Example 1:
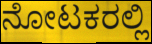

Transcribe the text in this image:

ನೋಟಕರಲ್ಲಿ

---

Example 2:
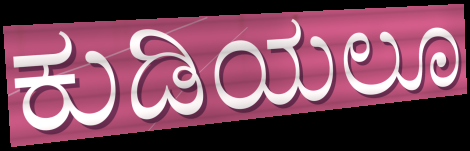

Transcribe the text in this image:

ಕುಡಿಯಲೂ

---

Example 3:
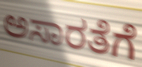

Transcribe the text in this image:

ಅಸಾರತೆಗೆ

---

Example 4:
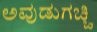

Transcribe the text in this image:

ಅವುಡುಗಚ್ಚಿ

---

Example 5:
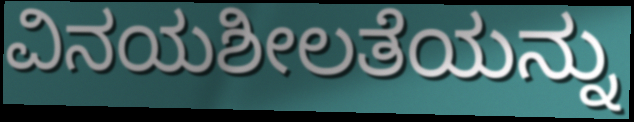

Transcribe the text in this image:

ವಿನಯಶೀಲತೆಯನ್ನು